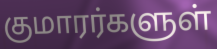
குமாரர்களுள்